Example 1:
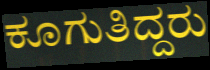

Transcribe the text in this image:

ಕೂಗುತಿದ್ದರು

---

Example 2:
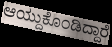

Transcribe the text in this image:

ಆಯ್ದುಕೊಂಡಿದ್ದಾರೆ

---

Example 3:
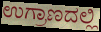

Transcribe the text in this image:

ಉಗ್ರಾಣದಲ್ಲಿ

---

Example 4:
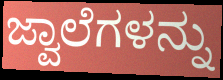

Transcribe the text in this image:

ಜ್ವಾಲೆಗಳನ್ನು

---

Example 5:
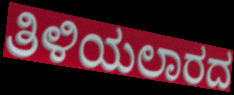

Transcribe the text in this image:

ತಿಳಿಯಲಾರದ